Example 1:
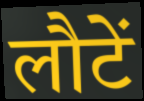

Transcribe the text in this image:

लौटें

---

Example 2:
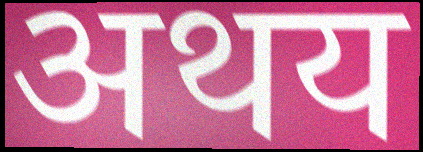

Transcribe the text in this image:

अथय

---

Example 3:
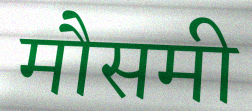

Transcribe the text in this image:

मौसमी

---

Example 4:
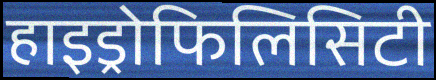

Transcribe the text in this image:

हाइड्रोफिलिसिटी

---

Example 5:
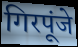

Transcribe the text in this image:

गिरपूंजे